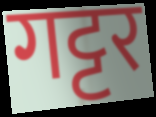
गट्टर